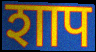
शाप